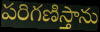
పరిగణిస్తాను